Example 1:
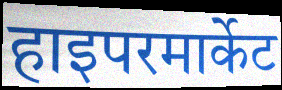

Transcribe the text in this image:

हाइपरमार्केट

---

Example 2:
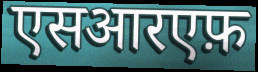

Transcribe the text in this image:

एसआरएफ़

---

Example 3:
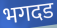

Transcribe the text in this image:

भगदड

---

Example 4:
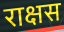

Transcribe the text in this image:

राक्षस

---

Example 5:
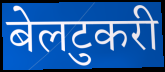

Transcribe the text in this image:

बेलटुकरी